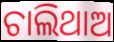
ଚାଲିଥାଅ